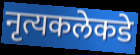
नृत्यकलेकडे